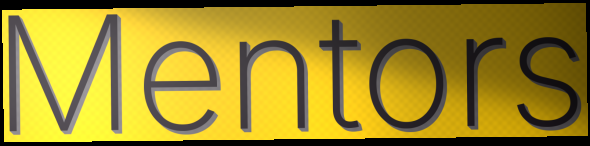
Mentors